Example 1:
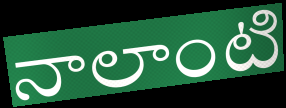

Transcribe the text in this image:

నాలాంటి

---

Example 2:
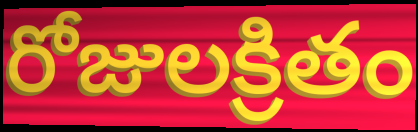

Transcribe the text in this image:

రోజులక్రితం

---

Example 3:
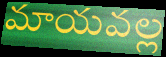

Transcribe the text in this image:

మాయవల్ల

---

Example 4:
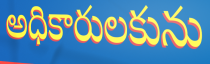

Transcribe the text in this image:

అధికారులకును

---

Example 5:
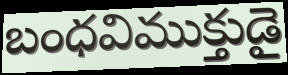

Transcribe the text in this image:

బంధవిముక్తుడై